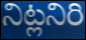
నిట్లనిరి